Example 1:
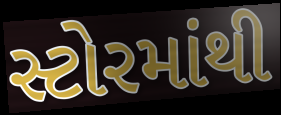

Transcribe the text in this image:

સ્ટોરમાંથી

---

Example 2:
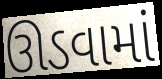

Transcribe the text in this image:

ઊડવામાં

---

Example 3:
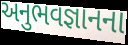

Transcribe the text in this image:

અનુભવજ્ઞાનના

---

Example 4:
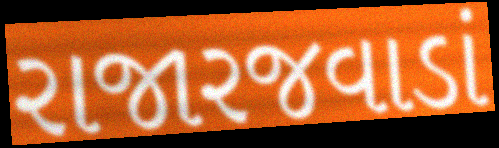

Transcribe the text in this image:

રાજારજવાડાં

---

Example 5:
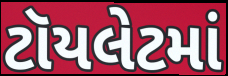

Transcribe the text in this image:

ટૉયલેટમાં